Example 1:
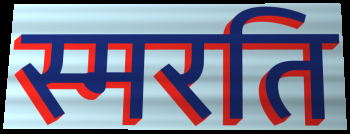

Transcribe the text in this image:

स्मरति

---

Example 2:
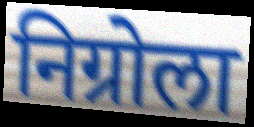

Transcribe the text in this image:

निग्रोला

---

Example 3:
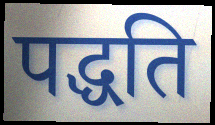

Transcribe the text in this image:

पद्धति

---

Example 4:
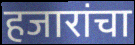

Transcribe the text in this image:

हजारांचा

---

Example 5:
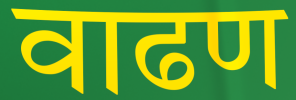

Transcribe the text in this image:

वाढण